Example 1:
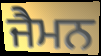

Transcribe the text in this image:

ਜੈਮਨ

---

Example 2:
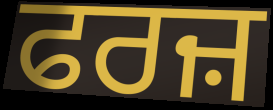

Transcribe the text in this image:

ਫਰਜ਼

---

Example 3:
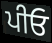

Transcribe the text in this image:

ਪੀਓ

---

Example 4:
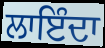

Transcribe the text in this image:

ਲਾਇੰਦਾ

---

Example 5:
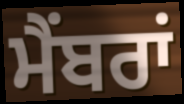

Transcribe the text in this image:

ਮੈਂਬਰਾਂ